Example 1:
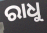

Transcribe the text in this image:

ରାଧୁ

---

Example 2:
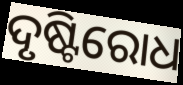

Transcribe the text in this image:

ଦୃଷ୍ଟିରୋଧ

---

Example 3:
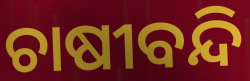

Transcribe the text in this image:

ଚାଷୀବନ୍ଦି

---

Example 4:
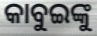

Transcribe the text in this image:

କାବୁଇଙ୍କୁ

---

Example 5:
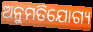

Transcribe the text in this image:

ଅନୁମତିଯୋଗ୍ୟ